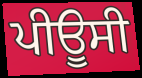
ਪੀਊਸੀ